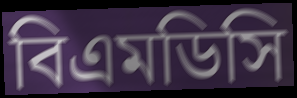
বিএমডিসি